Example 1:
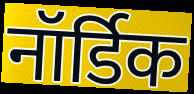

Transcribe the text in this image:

नॉर्डिक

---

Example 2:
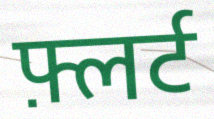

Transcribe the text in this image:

फ़्लर्ट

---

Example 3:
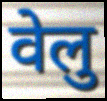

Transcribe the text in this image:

वेलु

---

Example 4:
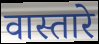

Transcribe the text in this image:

वास्तारे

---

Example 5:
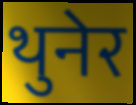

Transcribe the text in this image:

थुनेर